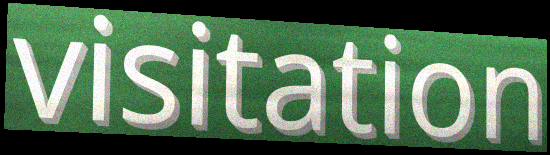
visitation